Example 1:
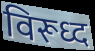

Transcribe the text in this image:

विरूध्द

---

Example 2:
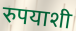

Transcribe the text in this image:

रुपयाशी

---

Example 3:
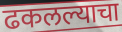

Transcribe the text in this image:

ढकलल्याचा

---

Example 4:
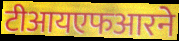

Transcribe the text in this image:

टीआयएफआरने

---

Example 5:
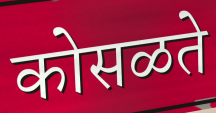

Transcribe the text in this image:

कोसळते